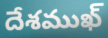
దేశముఖ్